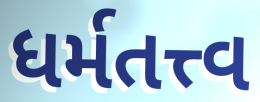
ધર્મતત્ત્વ